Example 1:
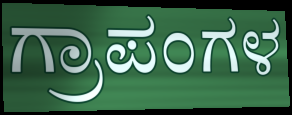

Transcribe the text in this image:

ಗ್ರಾಪಂಗಳ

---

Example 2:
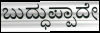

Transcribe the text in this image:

ಬುದ್ಧುಪ್ಪಾದೇ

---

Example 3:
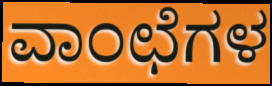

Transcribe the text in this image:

ವಾಂಛೆಗಳ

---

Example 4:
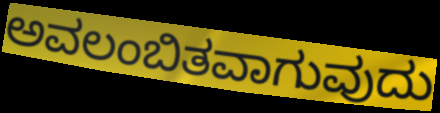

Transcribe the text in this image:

ಅವಲಂಬಿತವಾಗುವುದು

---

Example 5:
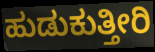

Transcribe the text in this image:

ಹುಡುಕುತ್ತೀರಿ